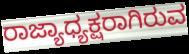
ರಾಜ್ಯಾಧ್ಯಕ್ಷರಾಗಿರುವ